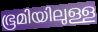
ഭൂമിയിലുള്ള